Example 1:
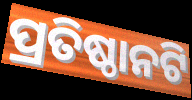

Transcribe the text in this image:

ପ୍ରତିଷ୍ଠାନଟି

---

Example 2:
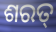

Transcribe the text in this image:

ଶରତ୍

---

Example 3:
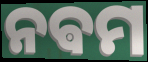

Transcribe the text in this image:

ନଵମ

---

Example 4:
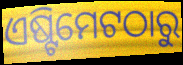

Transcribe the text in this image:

ଏଷ୍ଟିମେଟଠାରୁ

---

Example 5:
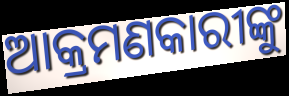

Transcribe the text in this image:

ଆକ୍ରମଣକାରୀଙ୍କୁ